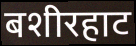
बशीरहाट